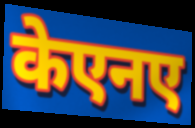
केएनए